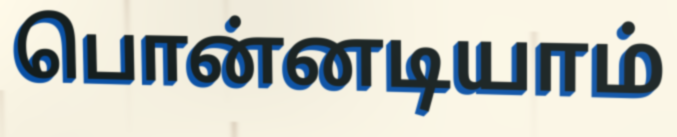
பொன்னடியாம்